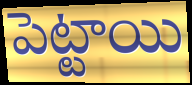
పెట్టాయి